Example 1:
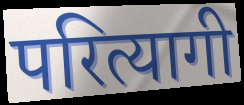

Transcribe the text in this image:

परित्यागी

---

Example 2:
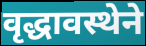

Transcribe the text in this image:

वृद्धावस्थेने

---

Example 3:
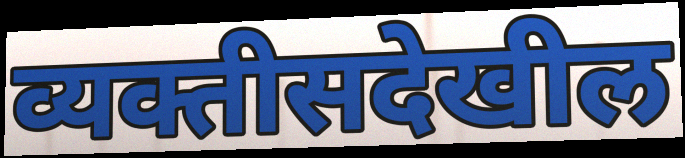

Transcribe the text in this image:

व्यक्तीसदेखील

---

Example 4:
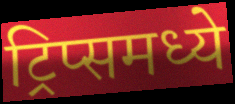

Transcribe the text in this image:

ट्रिप्समध्ये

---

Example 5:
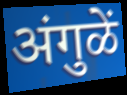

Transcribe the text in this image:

अंगुळें